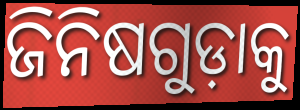
ଜିନିଷଗୁଡ଼ାକୁ